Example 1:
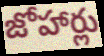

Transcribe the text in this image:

జోహార్లు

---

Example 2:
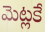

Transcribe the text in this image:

మెట్లకే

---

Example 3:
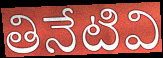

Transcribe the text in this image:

తినేటివి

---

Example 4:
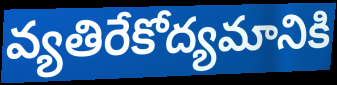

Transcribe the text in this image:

వ్యతిరేకోద్యమానికి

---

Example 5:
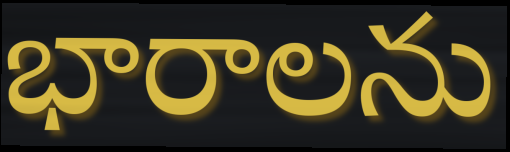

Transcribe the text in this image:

భారాలను